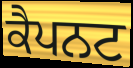
ਕੈਪਨਟ